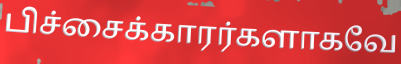
பிச்சைக்காரர்களாகவே